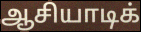
ஆசியாடிக்